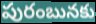
పురంబునకు